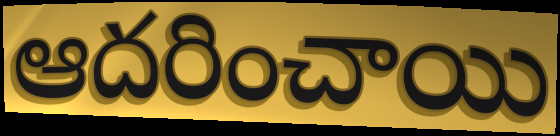
ఆదరించాయి